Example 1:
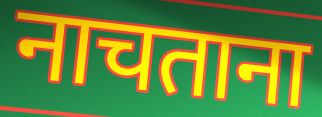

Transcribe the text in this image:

नाचताना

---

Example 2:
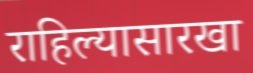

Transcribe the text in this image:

राहिल्यासारखा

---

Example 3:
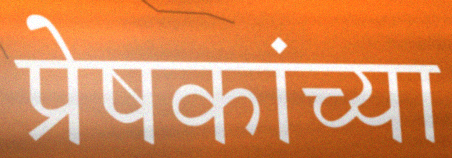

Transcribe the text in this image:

प्रेषकांच्या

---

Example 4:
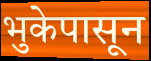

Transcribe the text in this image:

भुकेपासून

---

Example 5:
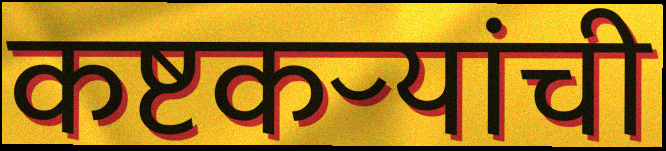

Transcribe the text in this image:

कष्टकऱ्यांची